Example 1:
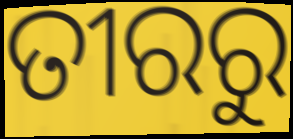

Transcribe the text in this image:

ତୀରରୁ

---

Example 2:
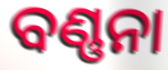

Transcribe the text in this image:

ବଣ୍ଣନା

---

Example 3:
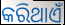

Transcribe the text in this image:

କରିଥାଏଁ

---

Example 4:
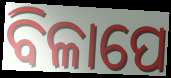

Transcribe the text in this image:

ବିଳାପେ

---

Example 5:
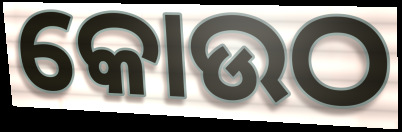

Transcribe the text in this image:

କୋଉଠ